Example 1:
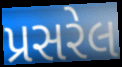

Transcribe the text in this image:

પ્રસરેલ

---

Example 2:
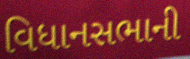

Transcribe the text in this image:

વિધાનસભાની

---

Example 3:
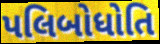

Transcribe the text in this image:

પલિબોધોતિ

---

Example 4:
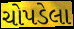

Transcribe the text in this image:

ચોપડેલા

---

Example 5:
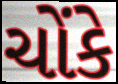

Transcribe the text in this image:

ચોંકે